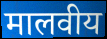
मालवीय